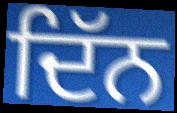
ਦਿੱਨ